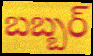
బబ్బర్